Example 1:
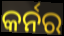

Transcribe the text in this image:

କର୍ନର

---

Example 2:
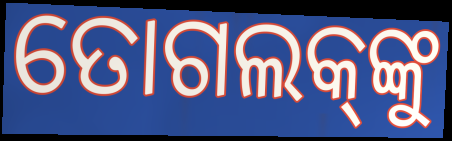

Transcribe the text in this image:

ତୋଗଲକ୍‌ଙ୍କୁ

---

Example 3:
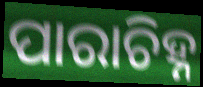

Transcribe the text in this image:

ପାରାଚିହ୍ନ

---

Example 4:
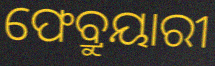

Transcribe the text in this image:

ଫେବ୍ରୁୟାରୀ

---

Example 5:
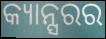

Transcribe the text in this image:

କ୍ୟାନ୍ସରର